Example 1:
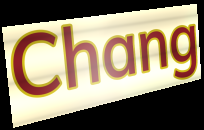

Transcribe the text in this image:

Chang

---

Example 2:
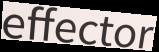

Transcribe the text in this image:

effector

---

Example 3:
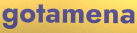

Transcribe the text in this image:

gotamena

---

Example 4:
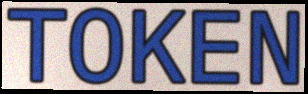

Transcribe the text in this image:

TOKEN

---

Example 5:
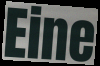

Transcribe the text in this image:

Eine